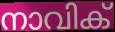
നാവിക്